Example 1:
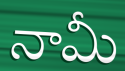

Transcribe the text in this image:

నామీ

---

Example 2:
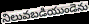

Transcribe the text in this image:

నిలువబడియుండెను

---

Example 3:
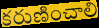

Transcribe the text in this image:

కరుణించాలి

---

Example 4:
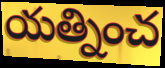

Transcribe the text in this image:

యత్నించ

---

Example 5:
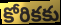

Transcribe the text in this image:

కోరికకు